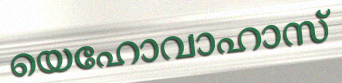
യെഹോവാഹാസ്